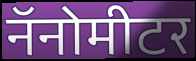
नॅनोमीटर